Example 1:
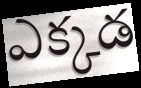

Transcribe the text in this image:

ఎక్కడ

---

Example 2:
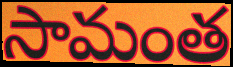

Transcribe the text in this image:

సామంత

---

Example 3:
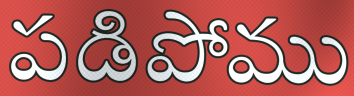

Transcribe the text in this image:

పడిపోము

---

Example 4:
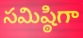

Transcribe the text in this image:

సమిష్ఠిగా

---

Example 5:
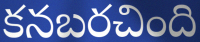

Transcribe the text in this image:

కనబరచింది